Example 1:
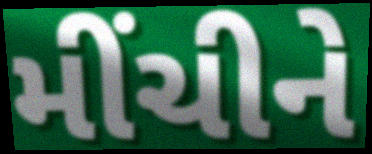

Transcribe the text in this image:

મીંચીને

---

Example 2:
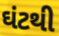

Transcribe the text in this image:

ઘંટથી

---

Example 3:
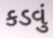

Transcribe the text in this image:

કડવું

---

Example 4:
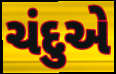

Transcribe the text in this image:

ચંદુએ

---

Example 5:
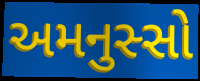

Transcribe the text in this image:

અમનુસ્સો